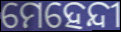
ମେହେନ୍ଦୀ